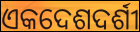
ଏକଦେଶଦର୍ଶୀ